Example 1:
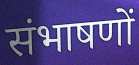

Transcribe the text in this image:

संभाषणों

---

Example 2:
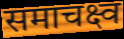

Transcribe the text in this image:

समाचक्ष्व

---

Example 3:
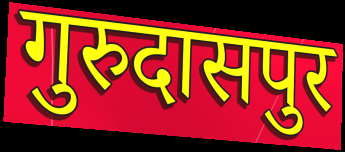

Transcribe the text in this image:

गुरुदासपुर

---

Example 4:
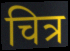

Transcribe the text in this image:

चित्र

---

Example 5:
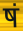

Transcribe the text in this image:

षं